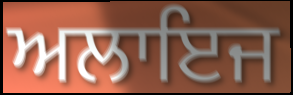
ਅਲਾਇਜ